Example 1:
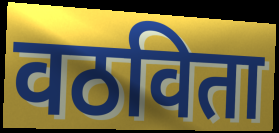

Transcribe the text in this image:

वठविता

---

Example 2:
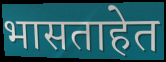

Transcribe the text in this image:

भासताहेत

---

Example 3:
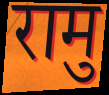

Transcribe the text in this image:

रामु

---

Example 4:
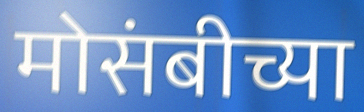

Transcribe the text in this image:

मोसंबीच्या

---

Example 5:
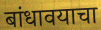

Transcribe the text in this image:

बांधावयाचा